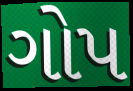
ગોપ